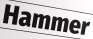
Hammer